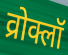
व्रोक्लॉ